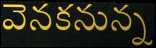
వెనకనున్న